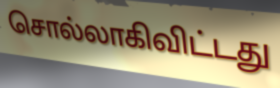
சொல்லாகிவிட்டது